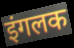
इंगलक